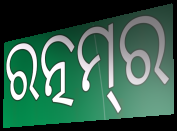
ରତ୍ନମ୍‌ର